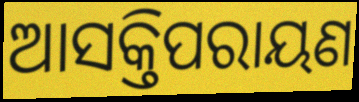
ଆସକ୍ତିପରାୟଣ